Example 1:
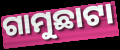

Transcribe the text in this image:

ଗାମୁଛାଟା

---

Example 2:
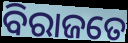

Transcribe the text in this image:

ବିରାଜତେ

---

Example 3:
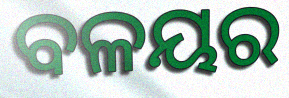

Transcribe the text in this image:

ବଳୟର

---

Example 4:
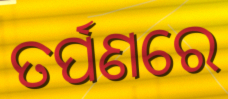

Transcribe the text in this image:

ତର୍ପଣରେ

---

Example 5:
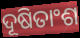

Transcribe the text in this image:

ଦୂଷିତାଂଶ